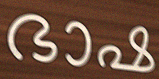
ഭാഷ